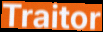
Traitor